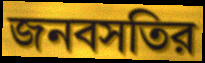
জনবসতির